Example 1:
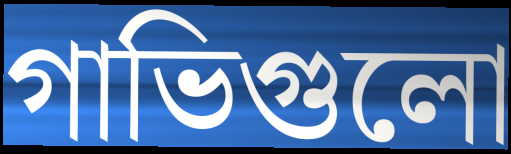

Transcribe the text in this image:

গাভিগুলো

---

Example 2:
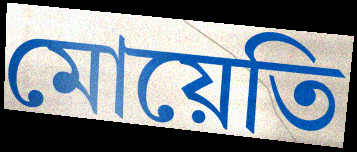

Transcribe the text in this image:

মোয়েতি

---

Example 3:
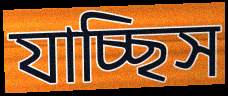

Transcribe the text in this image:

যাচ্ছিস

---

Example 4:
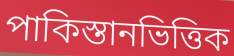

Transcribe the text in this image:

পাকিস্তানভিত্তিক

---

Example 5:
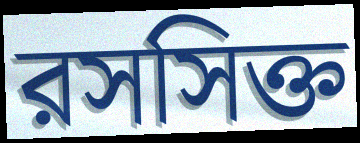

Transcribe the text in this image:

রসসিক্ত